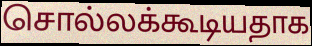
சொல்லக்கூடியதாக